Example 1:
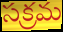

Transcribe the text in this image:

సక్రమ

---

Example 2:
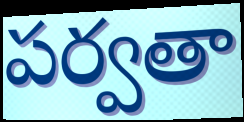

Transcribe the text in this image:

పర్వతా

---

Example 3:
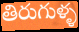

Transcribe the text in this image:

తిరుగుళ్ళ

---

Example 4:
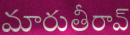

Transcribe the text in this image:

మారుతీరావ్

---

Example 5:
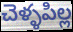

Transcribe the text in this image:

చెళ్ళపిల్ల